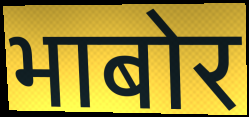
भाबोर